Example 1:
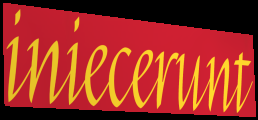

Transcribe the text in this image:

iniecerunt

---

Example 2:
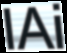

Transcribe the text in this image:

IAi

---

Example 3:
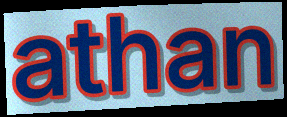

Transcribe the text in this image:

athan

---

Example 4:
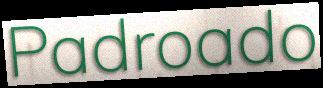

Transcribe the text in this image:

Padroado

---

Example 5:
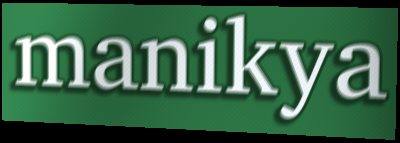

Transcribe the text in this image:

manikya